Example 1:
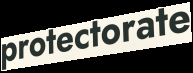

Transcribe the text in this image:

protectorate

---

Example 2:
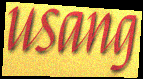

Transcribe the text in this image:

usang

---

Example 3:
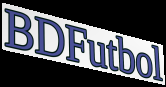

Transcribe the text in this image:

BDFutbol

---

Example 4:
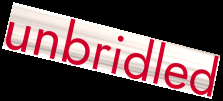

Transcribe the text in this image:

unbridled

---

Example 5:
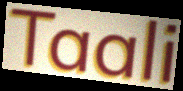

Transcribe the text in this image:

Taali